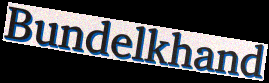
Bundelkhand